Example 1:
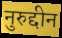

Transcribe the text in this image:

नुरुद्दीन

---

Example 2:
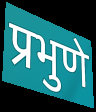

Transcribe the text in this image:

प्रभुणे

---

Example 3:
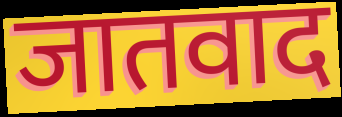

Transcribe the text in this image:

जातवाद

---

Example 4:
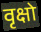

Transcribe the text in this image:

वृक्षो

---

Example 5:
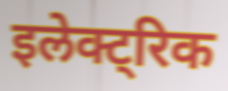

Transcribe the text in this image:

इलेक्ट्रिक